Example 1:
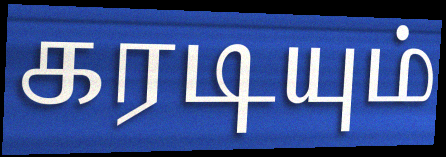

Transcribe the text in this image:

கரடியும்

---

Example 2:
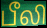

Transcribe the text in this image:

பீலி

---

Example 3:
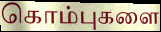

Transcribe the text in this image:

கொம்புகளை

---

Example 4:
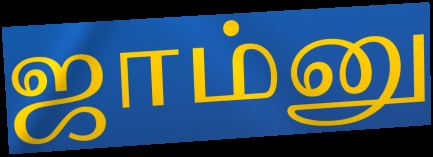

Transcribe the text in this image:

ஜாம்னு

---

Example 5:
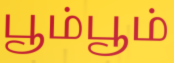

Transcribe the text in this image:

பூம்பூம்